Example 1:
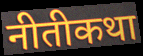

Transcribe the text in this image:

नीतीकथा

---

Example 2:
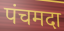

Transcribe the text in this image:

पंचमदा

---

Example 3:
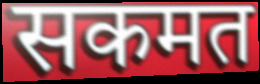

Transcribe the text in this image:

सकमत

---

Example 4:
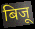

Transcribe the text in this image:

बिजू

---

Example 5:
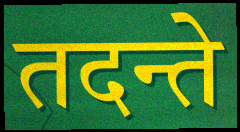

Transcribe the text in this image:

तदन्ते